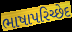
ભાષાપરિચ્છેદ